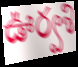
ఊర్వశి